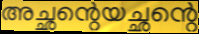
അച്ഛന്റെയച്ഛന്റെ